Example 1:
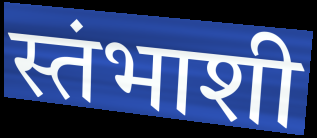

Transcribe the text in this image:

स्तंभाशी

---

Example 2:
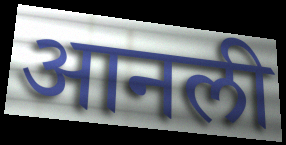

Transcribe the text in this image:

आनली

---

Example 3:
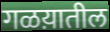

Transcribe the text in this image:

गळय़ातील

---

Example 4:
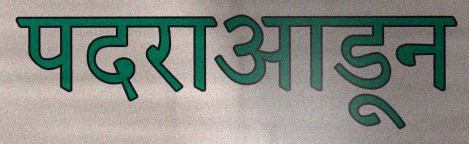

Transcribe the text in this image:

पदराआडून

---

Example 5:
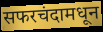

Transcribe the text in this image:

सफरचंदामधून